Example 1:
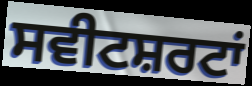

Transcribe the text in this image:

ਸਵੀਟਸ਼ਰਟਾਂ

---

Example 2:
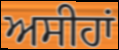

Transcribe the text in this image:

ਅਸੀਹਾਂ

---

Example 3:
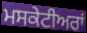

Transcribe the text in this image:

ਮਸਕੇਟੀਅਰਾਂ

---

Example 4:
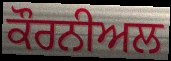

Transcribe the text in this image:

ਕੌਰਨੀਅਲ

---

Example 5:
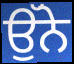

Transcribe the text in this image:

ਉੱਨੇ